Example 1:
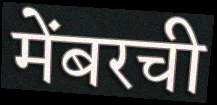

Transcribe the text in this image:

मेंबरची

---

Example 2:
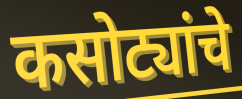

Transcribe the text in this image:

कसोट्यांचे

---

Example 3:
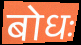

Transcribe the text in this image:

बोधः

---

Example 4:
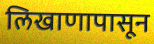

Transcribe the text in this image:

लिखाणापासून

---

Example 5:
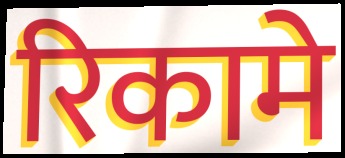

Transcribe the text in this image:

रिकामे